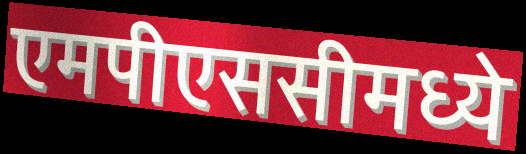
एमपीएससीमध्ये